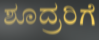
ಶೂದ್ರರಿಗೆ